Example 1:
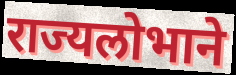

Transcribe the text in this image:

राज्यलोभाने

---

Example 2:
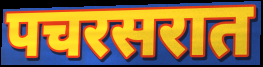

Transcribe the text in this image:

पचरसरात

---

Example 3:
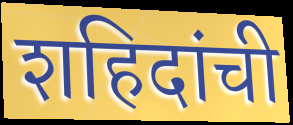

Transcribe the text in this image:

शहिदांची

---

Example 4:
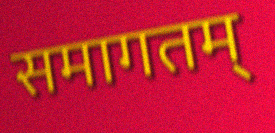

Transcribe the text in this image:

समागतम्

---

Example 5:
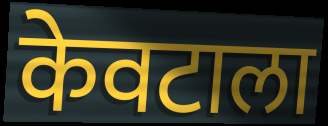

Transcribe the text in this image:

केवटाला